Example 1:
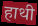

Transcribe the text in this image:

हाथी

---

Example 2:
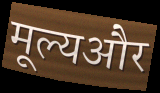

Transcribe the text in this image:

मूल्यऔर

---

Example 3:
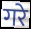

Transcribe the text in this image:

गरे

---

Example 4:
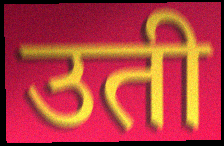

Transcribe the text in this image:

उती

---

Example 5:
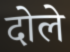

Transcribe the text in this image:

दोले